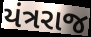
યંત્રરાજ